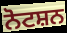
ਨੋਟਸ਼ਨ